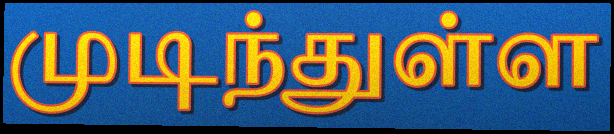
முடிந்துள்ள